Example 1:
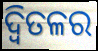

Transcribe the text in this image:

ଦ୍ୱିତଳର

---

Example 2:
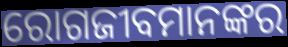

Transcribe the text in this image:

ରୋଗଜୀବମାନଙ୍କର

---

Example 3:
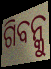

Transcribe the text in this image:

ଗିବନ୍କୁ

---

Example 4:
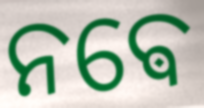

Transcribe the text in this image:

ନଵେ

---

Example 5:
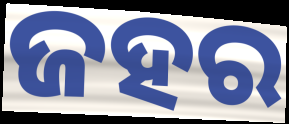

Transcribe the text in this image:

ଜହର